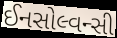
ઈનસોલ્વન્સી